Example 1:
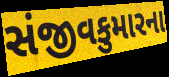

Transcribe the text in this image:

સંજીવકુમારના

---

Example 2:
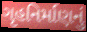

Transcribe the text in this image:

ગૃહનિર્માણનું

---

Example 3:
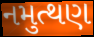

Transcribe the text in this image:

નમુત્થણ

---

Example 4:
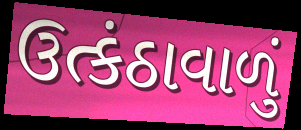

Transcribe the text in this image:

ઉત્કંઠાવાળું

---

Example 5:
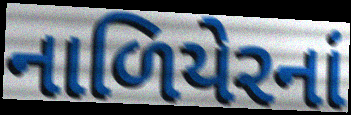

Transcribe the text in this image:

નાળિયેરનાં